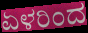
ಏಳರಿಂದ